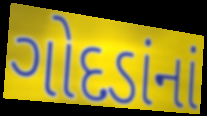
ગોદડાંનાં